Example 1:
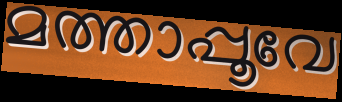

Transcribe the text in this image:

മത്താപ്പൂവേ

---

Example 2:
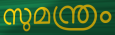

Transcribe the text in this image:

സുമന്ത്രം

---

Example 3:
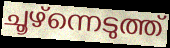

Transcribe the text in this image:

ചൂഴ്ന്നെടുത്ത്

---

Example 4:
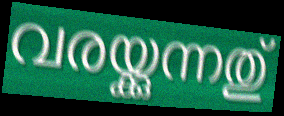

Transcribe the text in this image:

വരയ്ക്കുന്നതു്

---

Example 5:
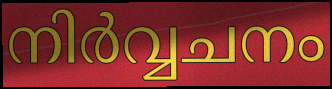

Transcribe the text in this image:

നിർവ്വചനം